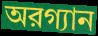
অরগ্যান